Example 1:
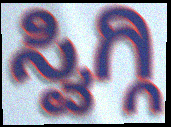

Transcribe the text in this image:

ಸ್ವಿಗ್ಗಿ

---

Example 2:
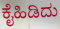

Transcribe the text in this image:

ಕೈಹಿಡಿದು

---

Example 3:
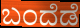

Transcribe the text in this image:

ಬಂದೆಡೆ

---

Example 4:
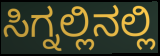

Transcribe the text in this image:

ಸಿಗ್ನಲ್ಲಿನಲ್ಲಿ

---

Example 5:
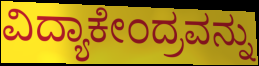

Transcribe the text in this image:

ವಿದ್ಯಾಕೇಂದ್ರವನ್ನು